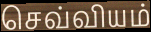
செவ்வியம்